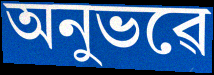
অনুভৱে